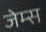
जेम्स